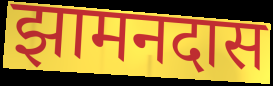
झामनदास